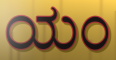
ಯಂ